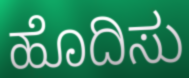
ಹೊದಿಸು